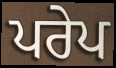
ਪਰੇਪ